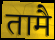
तामै